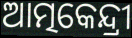
ଆତ୍ମକେନ୍ଦ୍ରୀ